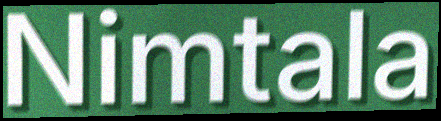
Nimtala